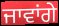
ਜਾਵਾਂਗੇ